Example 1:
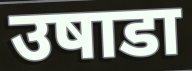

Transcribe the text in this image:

उषाडा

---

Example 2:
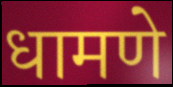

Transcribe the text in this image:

धामणे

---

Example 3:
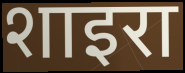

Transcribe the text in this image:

शाइरा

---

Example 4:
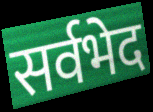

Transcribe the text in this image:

सर्वभेद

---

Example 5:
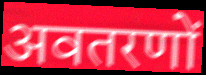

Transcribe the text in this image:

अवतरणों